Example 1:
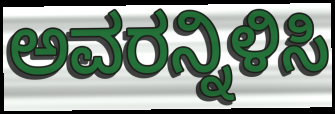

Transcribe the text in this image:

ಅವರನ್ನಿಳಿಸಿ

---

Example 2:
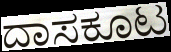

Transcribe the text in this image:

ದಾಸಕೂಟ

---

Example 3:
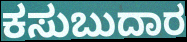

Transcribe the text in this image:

ಕಸುಬುದಾರ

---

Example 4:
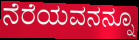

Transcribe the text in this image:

ನೆರೆಯವನನ್ನೂ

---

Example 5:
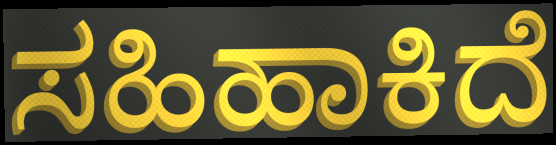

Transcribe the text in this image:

ಸಹಿಹಾಕಿದೆ